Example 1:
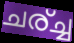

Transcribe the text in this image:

ചര്ച്ച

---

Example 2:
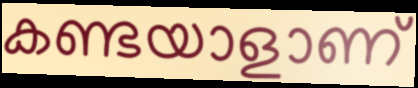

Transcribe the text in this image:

കണ്ടയാളാണ്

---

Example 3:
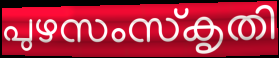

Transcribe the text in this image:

പുഴസംസ്കൃതി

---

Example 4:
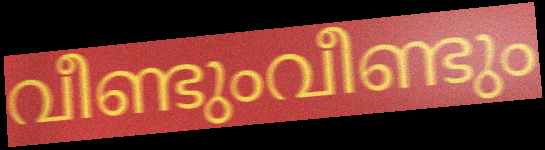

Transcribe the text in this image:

വീണ്ടുംവീണ്ടും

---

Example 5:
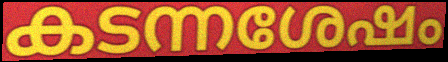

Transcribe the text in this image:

കടന്നശേഷം